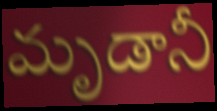
మృడానీ